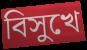
বিসুখে